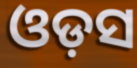
ଓଡ଼ସ